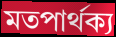
মতপাৰ্থক্য